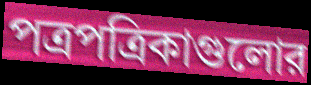
পত্রপত্রিকাগুলোর